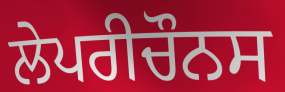
ਲੇਪਰੀਚੌਨਸ